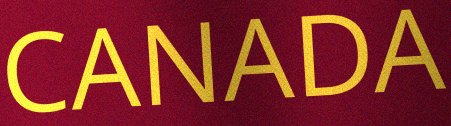
CANADA